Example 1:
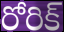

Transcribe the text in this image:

రోరిక్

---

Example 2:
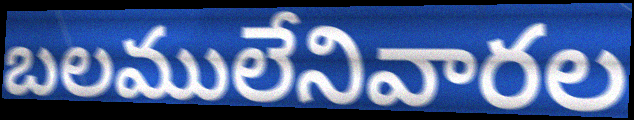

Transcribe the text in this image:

బలములేనివారల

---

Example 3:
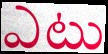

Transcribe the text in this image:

ఎటు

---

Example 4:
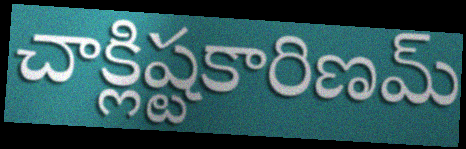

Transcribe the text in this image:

చాక్లిష్టకారిణమ్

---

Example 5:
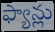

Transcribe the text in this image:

ఫ్యాన్లు